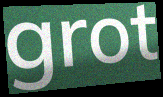
grot